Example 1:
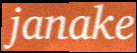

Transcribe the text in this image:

janake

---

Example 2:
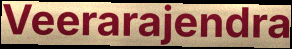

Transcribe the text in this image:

Veerarajendra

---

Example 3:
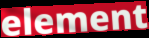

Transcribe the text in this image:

element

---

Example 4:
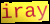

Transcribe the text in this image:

iray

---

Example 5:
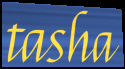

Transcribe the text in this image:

tasha